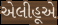
એલીહૂએ